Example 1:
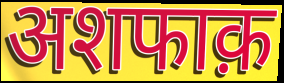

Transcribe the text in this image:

अशफाक़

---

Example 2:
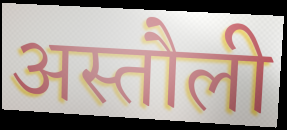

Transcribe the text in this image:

अस्तौली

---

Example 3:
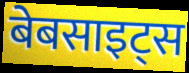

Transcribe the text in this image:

बेबसाइट्स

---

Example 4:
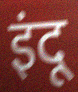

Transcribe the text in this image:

इंदू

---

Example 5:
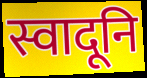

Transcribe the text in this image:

स्वादूनि